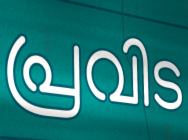
പ്രവിട